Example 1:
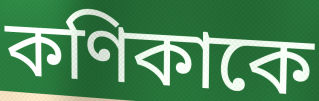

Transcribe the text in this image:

কণিকাকে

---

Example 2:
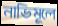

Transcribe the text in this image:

নাভিমূলে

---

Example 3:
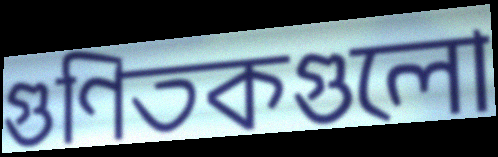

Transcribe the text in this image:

গুণিতকগুলো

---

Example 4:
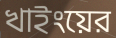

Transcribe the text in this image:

খাইংয়ের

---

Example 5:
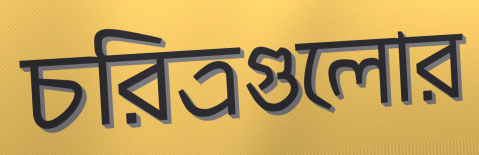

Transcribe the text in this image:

চরিত্রগুলোর